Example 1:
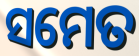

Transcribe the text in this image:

ସମେତ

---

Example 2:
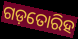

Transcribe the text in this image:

ଗଡ଼ତୋରିହ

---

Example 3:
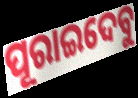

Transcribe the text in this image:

ପୂରାଇଦେବୁ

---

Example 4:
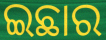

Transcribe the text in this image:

ଇଛାର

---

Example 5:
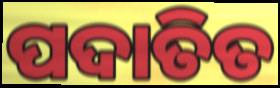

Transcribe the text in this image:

ପଦାତିତ